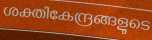
ശക്തികേന്ദ്രങ്ങളുടെ